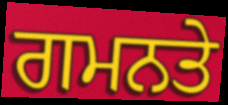
ਗਮਨਤੇ